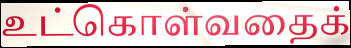
உட்கொள்வதைக்